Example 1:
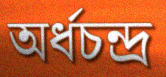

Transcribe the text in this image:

অর্ধচন্দ্র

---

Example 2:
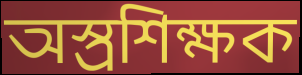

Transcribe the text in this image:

অস্ত্রশিক্ষক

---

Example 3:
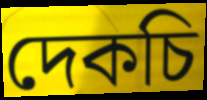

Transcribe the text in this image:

দেকচি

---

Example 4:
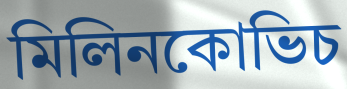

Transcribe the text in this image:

মিলিনকোভিচ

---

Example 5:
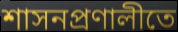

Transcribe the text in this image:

শাসনপ্রণালীতে